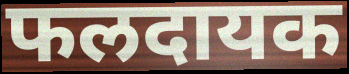
फलदायक